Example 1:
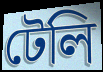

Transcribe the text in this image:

টেলি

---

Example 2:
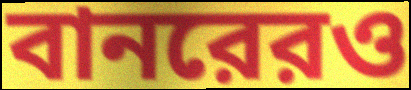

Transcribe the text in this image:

বানরেরও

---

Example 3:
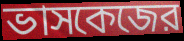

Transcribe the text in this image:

ভাসকেজের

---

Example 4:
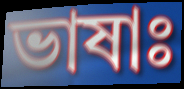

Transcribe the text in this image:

ভাষাঃ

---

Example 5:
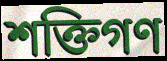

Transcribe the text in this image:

শক্তিগণ